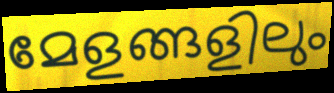
മേളങ്ങളിലും